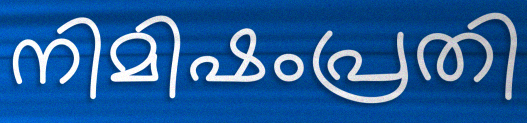
നിമിഷംപ്രതി